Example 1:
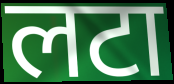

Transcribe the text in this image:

लटा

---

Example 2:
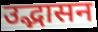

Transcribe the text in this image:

उद्भासन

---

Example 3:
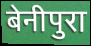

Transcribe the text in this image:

बेनीपुरा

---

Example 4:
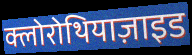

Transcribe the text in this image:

क्लोरोथियाज़ाइड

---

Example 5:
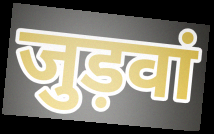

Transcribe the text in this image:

जुड़वां